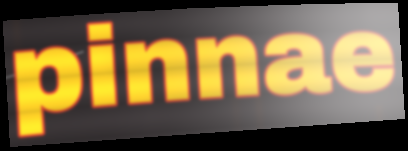
pinnae